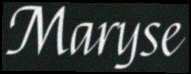
Maryse